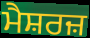
ਮੈਸ਼ਰਜ਼